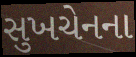
સુખચેનના